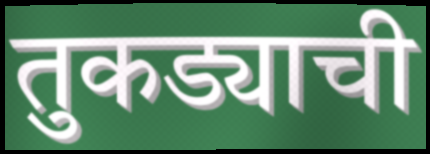
तुकड्याची